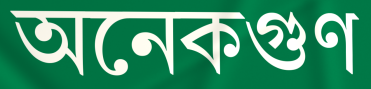
অনেকগুণ